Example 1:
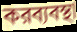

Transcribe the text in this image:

করব্যবস্থা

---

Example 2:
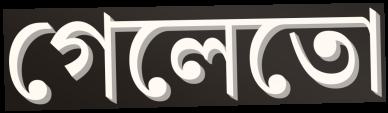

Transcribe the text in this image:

গেলেতো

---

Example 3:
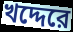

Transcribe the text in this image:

খদ্দেরে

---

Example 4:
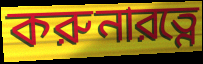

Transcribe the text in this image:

করুনারত্নে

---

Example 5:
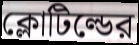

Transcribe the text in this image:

ক্লোটিল্ডের